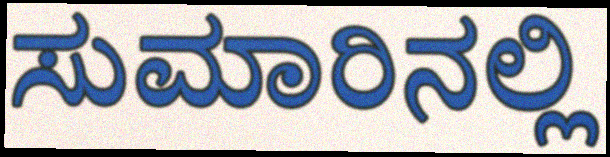
ಸುಮಾರಿನಲ್ಲಿ